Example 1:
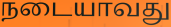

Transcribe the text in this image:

நடையாவது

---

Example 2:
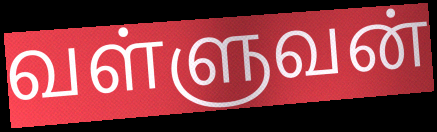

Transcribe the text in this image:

வள்ளுவன்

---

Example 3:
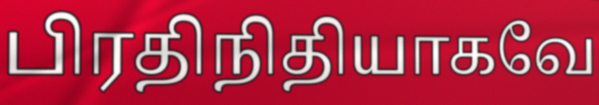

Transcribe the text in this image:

பிரதிநிதியாகவே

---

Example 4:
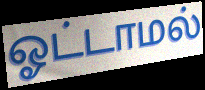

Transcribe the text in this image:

ஓட்டாமல்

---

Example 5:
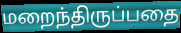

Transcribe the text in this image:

மறைந்திருப்பதை